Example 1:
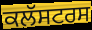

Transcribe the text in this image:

ਕਲੱਸਟਰਸ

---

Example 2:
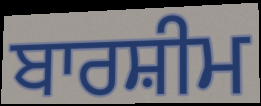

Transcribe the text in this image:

ਬਾਰਸ਼ੀਮ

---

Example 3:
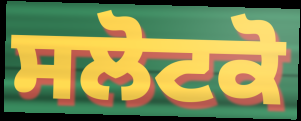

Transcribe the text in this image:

ਸਲੋਟਕੋ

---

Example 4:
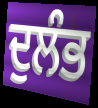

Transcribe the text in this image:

ਦੁਲੰਭ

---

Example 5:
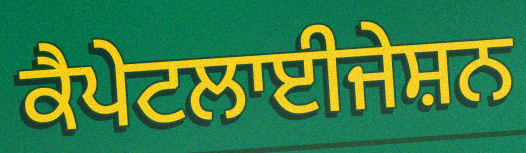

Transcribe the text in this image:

ਕੈਪੇਟਲਾਈਜੇਸ਼ਨ